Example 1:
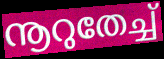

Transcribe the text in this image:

നൂറുതേച്ച്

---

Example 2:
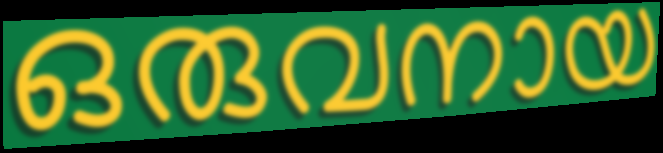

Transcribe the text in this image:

ഒരുവനായ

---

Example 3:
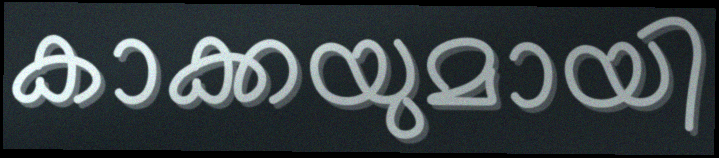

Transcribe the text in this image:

കാക്കയുമായി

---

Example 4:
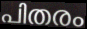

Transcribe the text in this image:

പിതരം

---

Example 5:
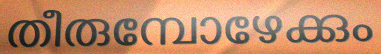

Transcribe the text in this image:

തീരുമ്പോഴേക്കും